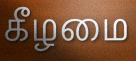
கீழமை